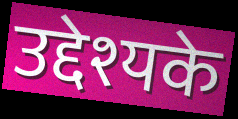
उद्देश्यके